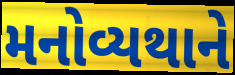
મનોવ્યથાને